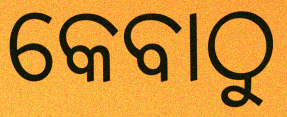
କେବାଠୁ